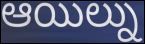
ఆయిల్ను